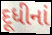
દૂધીનાં